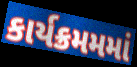
કાર્યક્રમમમાં